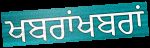
ਖਬਰਾਂਖਬਰਾਂ